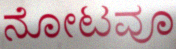
ನೋಟವೂ